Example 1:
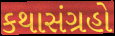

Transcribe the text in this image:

કથાસંગ્રહો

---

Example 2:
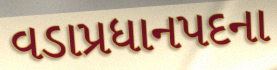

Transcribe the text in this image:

વડાપ્રધાનપદના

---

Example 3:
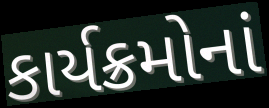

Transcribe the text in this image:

કાર્યક્રમોનાં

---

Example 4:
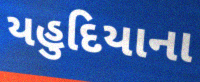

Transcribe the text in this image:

યહુદિયાના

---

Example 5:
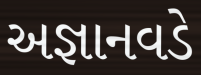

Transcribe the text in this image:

અજ્ઞાનવડે